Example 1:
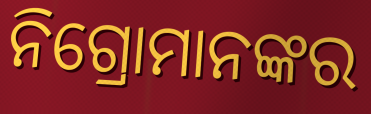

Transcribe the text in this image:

ନିଗ୍ରୋମାନଙ୍କର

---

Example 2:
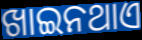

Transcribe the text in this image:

ଖାଇନଥାଏ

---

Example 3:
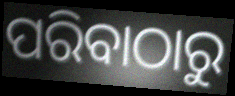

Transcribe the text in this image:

ପରିବାଠାରୁ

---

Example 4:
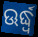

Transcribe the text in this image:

ଊର୍ଦ୍ଧ୍ବ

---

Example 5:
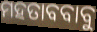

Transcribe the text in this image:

ମହତାବବାବୁ